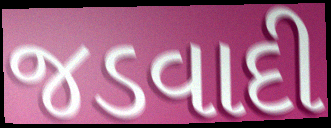
જડવાદી